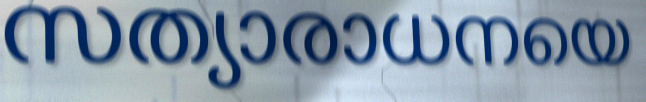
സത്യാരാധനയെ